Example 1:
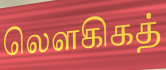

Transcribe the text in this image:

லௌகிகத்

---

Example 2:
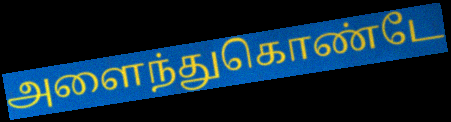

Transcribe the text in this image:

அளைந்துகொண்டே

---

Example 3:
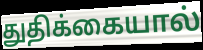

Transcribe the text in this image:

துதிக்கையால்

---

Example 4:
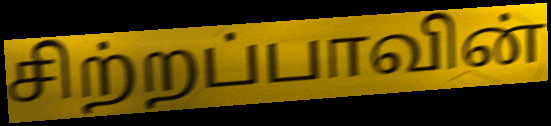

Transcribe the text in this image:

சிற்றப்பாவின்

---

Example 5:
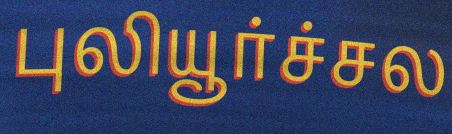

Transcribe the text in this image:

புலியூர்ச்சல